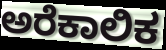
ಅರೆಕಾಲಿಕ